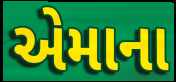
એમાના